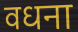
वधना